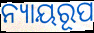
ନ୍ୟାୟରୂପ